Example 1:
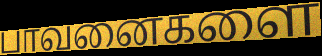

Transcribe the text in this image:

பாவனைகளை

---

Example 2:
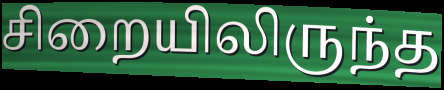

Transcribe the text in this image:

சிறையிலிருந்த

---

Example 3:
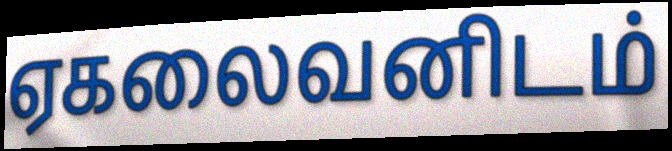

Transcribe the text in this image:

ஏகலைவனிடம்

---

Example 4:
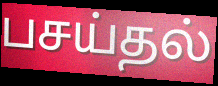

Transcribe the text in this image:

பசய்தல்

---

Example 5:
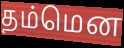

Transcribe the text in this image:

தம்மென